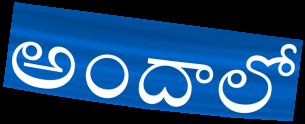
అందాలో